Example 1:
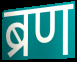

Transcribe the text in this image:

ब्रण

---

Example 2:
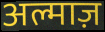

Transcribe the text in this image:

अल्माज़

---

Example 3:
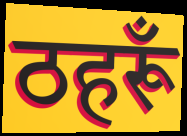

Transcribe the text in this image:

ठहरूँ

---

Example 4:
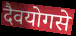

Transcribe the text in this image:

दैवयोगसे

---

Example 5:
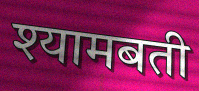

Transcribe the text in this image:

श्यामबती